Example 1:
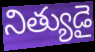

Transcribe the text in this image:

నిత్యుడై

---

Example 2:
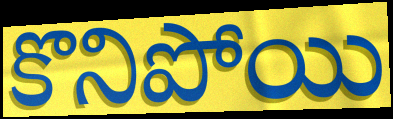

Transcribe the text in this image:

కొనిపోయి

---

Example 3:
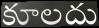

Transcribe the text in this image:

కూలదు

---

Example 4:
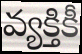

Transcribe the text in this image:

వ్యక్తికీ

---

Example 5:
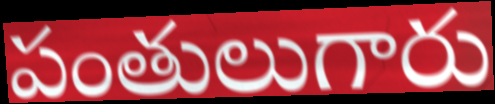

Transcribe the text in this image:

పంతులుగారు